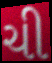
ચી